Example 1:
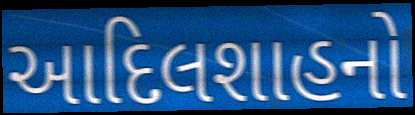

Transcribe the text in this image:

આદિલશાહનો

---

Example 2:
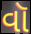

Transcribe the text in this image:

વૉ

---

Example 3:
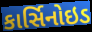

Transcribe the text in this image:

કાર્સિનોઇડ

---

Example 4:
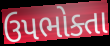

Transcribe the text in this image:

ઉપભોક્તા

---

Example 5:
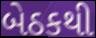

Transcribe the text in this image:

બેઠકથી